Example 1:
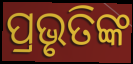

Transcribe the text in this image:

ପ୍ରଭୃତିଙ୍କ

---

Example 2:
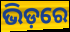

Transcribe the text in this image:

ଭିଡ଼ରେ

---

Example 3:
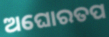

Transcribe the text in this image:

ଅଘୋରତପ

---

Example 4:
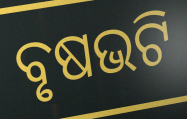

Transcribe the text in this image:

ବୃଷଭଟି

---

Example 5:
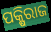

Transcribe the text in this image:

ପକ୍ଷିରାଜ